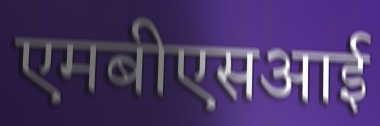
एमबीएसआई